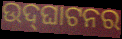
ଉଦ୍‌ଘାଟନର